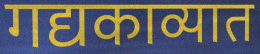
गद्यकाव्यात